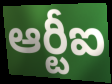
ఆర్టీఐ